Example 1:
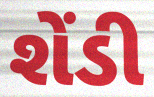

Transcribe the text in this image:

શેંડી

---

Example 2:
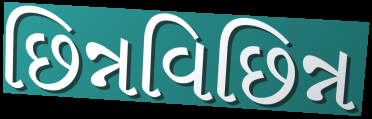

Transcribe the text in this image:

છિન્નવિછિન્ન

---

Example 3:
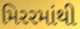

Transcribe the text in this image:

મિરરમાંથી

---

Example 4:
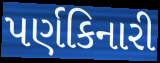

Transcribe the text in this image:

પર્ણકિનારી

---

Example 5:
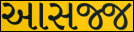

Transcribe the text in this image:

આસજ્જ